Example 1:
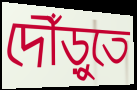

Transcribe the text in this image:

দৌঁড়ুতে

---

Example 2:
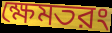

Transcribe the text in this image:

ক্ষেমতরং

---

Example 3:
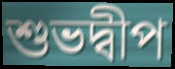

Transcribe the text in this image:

শুভদ্বীপ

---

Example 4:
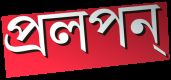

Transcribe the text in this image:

প্রলপন্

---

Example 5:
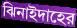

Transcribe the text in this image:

ঝিনাইদাহের